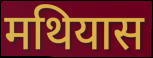
मथियास